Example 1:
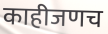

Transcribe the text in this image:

काहीजणच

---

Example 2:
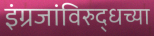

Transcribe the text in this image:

इंग्रजांविरुद्धच्या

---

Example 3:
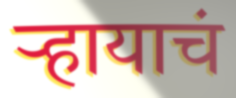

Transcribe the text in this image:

ऱ्हायाचं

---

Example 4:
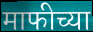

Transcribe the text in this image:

माफीच्या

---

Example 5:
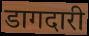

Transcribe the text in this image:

डागदारी